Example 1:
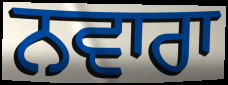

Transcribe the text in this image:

ਨਵਾਰਾ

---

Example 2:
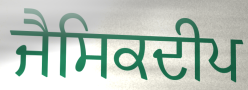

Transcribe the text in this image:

ਜੈਸਿਕਦੀਪ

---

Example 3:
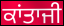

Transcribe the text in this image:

ਕਾਂਤਾਜੀ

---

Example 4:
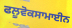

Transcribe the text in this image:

ਫਲੂਵੋਕਸਾਮਾਈਨ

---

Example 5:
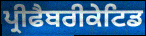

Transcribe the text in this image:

ਪ੍ਰੀਫੈਬਰੀਕੇਟਿਡ